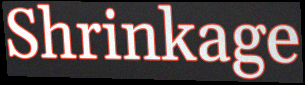
Shrinkage